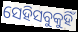
ସେହିସବୁକୁହିଁ